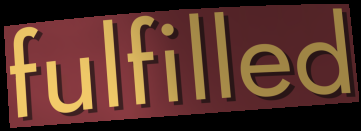
fulfilled